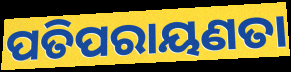
ପତିପରାୟଣତା